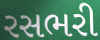
રસભરી